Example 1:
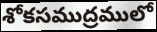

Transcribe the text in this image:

శోకసముద్రములో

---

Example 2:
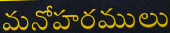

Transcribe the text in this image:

మనోహరములు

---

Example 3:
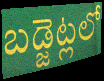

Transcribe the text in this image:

బడ్జెట్లలో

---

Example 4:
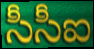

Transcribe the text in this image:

సీసీఐ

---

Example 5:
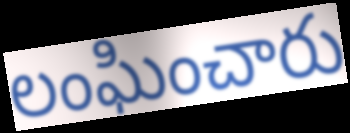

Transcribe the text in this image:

లంఘించారు